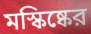
মস্কিষ্কের